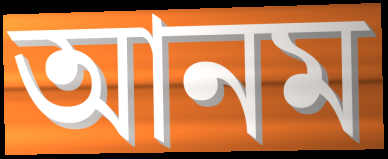
আনম